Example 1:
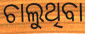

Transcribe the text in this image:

ଚାଲୁଥିବା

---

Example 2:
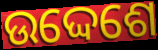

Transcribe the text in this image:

ଉଦ୍ଦେଶେ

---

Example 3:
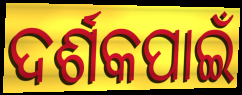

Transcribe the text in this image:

ଦର୍ଶକପାଇଁ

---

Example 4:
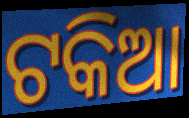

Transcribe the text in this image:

ଟକିଆ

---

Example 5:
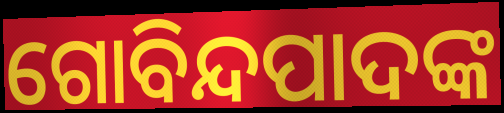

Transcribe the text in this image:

ଗୋବିନ୍ଦପାଦଙ୍କ